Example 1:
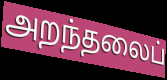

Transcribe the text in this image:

அறந்தலைப்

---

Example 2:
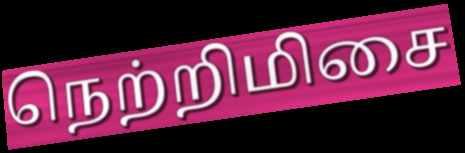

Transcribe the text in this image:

நெற்றிமிசை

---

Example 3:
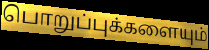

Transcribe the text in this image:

பொறுப்புக்களையும்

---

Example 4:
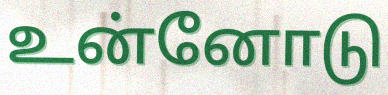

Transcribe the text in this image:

உன்னோடு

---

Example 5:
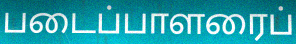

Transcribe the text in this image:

படைப்பாளரைப்